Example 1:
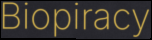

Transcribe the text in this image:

Biopiracy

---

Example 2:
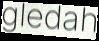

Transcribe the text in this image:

gledah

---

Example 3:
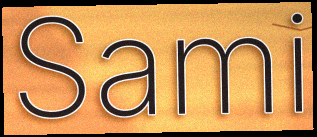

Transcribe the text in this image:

Sami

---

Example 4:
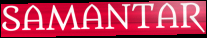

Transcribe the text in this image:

SAMANTAR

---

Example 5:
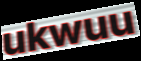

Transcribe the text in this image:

ukwuu